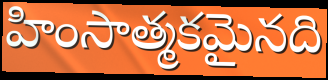
హింసాత్మకమైనది